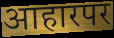
आहारपर